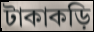
টাকাকড়ি